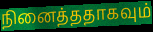
நினைத்ததாகவும்